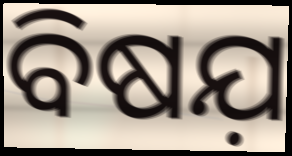
ବିଷଯ଼